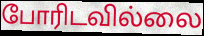
போரிடவில்லை